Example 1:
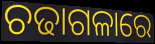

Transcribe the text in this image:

ଚଢାଗଳାରେ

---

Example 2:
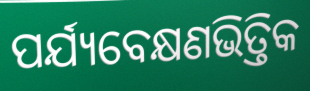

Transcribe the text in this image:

ପର୍ଯ୍ୟବେକ୍ଷଣଭିତ୍ତିକ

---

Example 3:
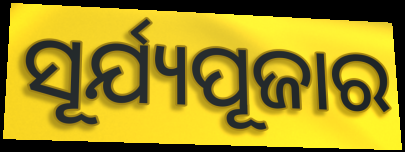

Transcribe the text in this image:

ସୂର୍ଯ୍ୟପୂଜାର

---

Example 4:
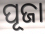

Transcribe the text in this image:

ପୂଜା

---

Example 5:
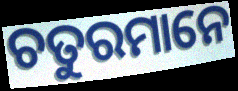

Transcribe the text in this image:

ଚତୁରମାନେ